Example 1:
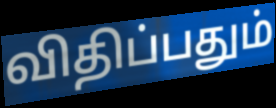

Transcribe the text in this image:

விதிப்பதும்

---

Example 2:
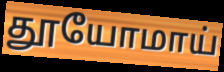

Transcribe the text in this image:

தூயோமாய்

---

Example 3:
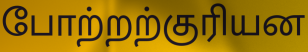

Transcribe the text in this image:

போற்றற்குரியன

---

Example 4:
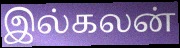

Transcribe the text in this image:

இல்கலன்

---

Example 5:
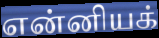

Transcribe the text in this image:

என்னியக்